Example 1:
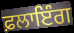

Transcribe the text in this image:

ਫ਼ਲਾਇੰਗ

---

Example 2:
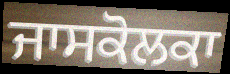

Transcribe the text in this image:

ਜਾਸਕੋਲਕਾ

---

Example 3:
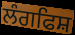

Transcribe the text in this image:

ਲੰਗਫਿਸ਼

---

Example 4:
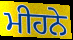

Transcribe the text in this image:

ਮੀਹਨੇ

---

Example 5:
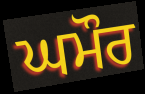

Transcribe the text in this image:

ਘਮੌਰ